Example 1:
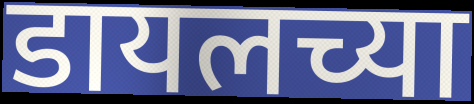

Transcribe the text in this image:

डायलच्या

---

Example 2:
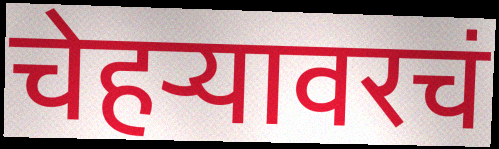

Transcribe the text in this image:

चेहर्‍यावरचं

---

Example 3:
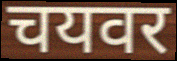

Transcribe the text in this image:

चयवर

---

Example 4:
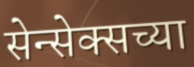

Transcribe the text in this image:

सेन्सेक्सच्या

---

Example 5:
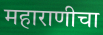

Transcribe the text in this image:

महाराणीचा